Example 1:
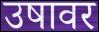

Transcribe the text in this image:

उषावर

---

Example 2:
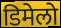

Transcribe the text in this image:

डिमेलो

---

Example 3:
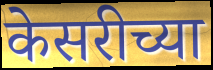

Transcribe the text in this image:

केसरीच्या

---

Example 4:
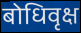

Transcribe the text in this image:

बोधिवृक्ष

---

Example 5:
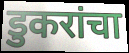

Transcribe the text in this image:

डुकरांचा